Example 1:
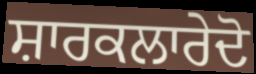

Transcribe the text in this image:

ਸ਼ਾਰਕਲਾਰੇਦੋ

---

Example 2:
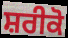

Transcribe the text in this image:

ਸ਼ਰੀਕੋ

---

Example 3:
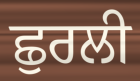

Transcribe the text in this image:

ਛੁਰਲੀ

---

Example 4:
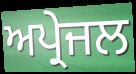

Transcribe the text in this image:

ਅਪ੍ਰੇਜਲ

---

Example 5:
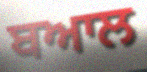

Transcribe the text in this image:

ਬਆਲ